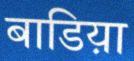
बाडिय़ा